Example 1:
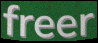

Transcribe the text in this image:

freer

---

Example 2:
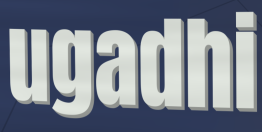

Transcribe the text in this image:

ugadhi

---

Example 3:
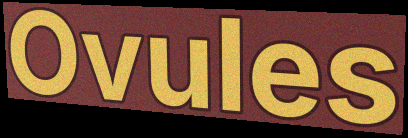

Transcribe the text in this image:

Ovules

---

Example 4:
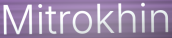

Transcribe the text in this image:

Mitrokhin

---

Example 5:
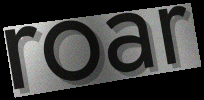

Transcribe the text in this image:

roar